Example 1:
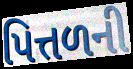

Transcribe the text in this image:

પિત્તળની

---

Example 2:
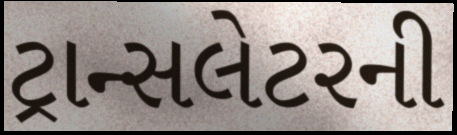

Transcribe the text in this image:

ટ્રાન્સલેટરની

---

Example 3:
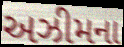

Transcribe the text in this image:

અઝીમના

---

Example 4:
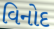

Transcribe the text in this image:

વિનોદ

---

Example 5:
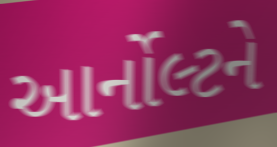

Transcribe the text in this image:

આર્નોલ્ટને